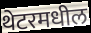
थेटरमधील